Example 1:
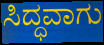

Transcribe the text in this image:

ಸಿದ್ಧವಾಗು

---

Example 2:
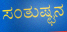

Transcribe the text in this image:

ಸಂತುಷ್ಟನ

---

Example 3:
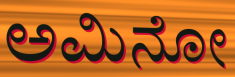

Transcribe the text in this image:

ಅಮಿನೋ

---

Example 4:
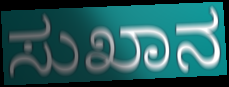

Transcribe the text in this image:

ಸುಖಾನ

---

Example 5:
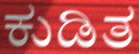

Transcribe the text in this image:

ಕುಡಿತ